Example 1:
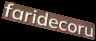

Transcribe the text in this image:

faridecoru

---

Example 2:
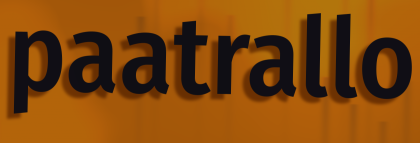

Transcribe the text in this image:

paatrallo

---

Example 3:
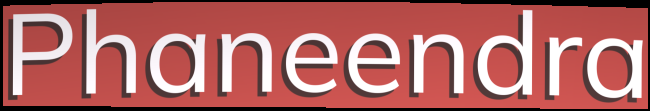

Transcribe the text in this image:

Phaneendra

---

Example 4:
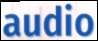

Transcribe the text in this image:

audio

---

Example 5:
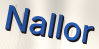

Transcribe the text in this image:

Nallor